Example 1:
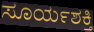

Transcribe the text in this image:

ಸೂರ್ಯಶಕ್ತಿ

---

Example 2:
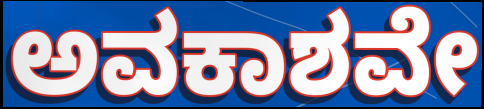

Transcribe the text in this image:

ಅವಕಾಶವೇ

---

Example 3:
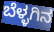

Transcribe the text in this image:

ಬೆಳ್ಳಗಿನ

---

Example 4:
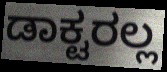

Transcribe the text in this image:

ಡಾಕ್ಟರಲ್ಲ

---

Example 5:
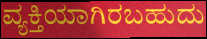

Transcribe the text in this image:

ವ್ಯಕ್ತಿಯಾಗಿರಬಹುದು